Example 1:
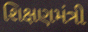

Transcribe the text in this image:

શિક્ષણમંત્રી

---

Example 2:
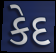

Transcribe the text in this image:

કેદ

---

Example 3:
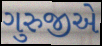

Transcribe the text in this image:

ગુરુજીએ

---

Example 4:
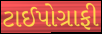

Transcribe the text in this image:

ટાઈપોગ્રાફી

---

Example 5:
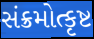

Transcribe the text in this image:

સંક્રમોત્કૃષ્ટ